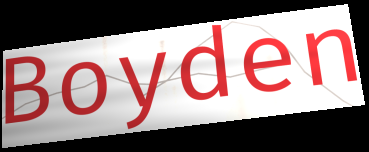
Boyden